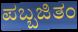
ಪಬ್ಬಜಿತಂ